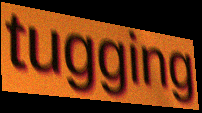
tugging